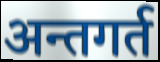
अन्तगर्त